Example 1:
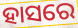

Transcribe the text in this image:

ହାସରେ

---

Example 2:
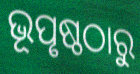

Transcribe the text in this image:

ଭୂପୃଷ୍ଠଠାରୁ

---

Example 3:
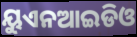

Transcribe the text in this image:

ୟୁଏନଆଇଡିଓ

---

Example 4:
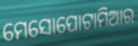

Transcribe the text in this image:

ମେସୋପୋଟାମିଆର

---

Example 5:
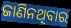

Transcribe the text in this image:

ଜାଣିନଥିବାର